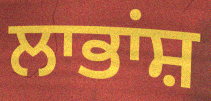
ਲਾਭਾਂਸ਼